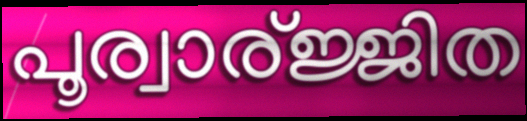
പൂര്വാര്ജ്ജിത